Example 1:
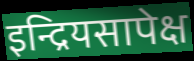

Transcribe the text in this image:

इन्द्रियसापेक्ष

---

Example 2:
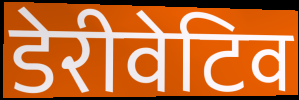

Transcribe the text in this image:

डेरीवेटिव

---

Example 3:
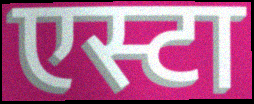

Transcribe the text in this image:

एस्टा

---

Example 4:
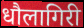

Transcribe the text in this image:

धौलागिरी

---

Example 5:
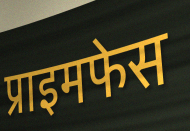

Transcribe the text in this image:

प्राइमफेस